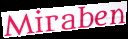
Miraben